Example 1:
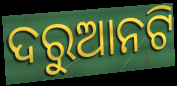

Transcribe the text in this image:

ଦରୁଆନଟି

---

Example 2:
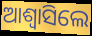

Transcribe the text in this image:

ଆଶ୍ୱାସିଲେ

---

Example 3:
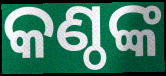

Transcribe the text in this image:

କଣ୍ଠଙ୍କ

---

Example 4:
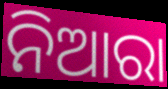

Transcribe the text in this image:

ନିଆରା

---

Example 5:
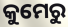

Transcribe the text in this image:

କୁମେରୁ